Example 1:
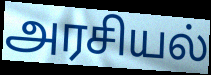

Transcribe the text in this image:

அரசியல்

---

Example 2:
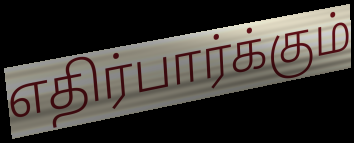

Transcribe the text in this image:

எதிர்பார்க்கும்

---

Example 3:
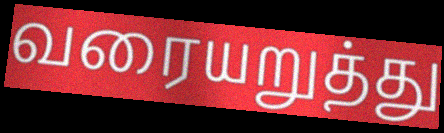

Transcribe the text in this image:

வரையறுத்து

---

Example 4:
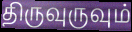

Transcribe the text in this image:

திருவுருவும்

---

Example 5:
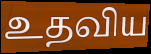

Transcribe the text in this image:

உதவிய